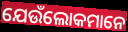
ଯେଉଁଲୋକମାନେ